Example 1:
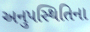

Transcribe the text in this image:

અનુપસ્થિતિના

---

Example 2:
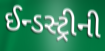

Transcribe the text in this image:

ઈન્ડસ્ટ્રીની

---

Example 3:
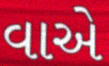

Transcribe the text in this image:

વાએ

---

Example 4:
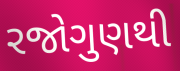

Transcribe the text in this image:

રજોગુણથી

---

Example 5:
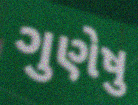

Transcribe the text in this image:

ગુણેષુ